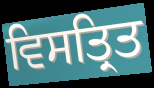
ਵਿਸਤ੍ਰਿਤ